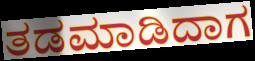
ತಡಮಾಡಿದಾಗ